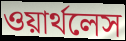
ওয়ার্থলেস